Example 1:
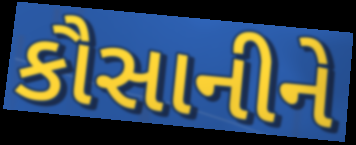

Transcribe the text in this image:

કૌસાનીને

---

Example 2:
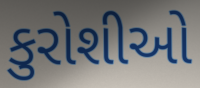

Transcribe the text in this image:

કુરોશીઓ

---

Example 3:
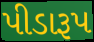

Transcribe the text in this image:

પીડારૂપ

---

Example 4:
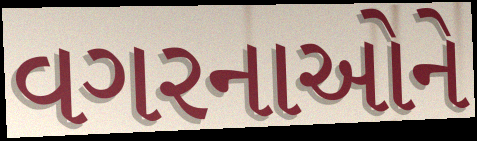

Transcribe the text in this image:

વગરનાઓને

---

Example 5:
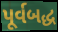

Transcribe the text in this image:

પૂર્વબદ્ધ